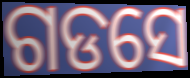
ଗଡସେ